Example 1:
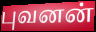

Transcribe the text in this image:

புவனன்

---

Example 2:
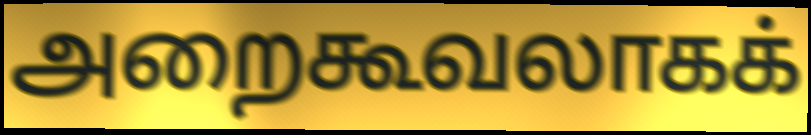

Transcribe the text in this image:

அறைகூவலாகக்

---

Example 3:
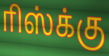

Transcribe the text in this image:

ரிஸ்க்கு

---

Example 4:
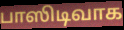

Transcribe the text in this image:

பாஸிடிவாக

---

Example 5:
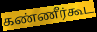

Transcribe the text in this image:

கண்ணீர்கூட